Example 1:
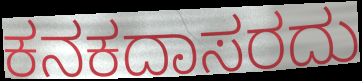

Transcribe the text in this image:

ಕನಕದಾಸರದು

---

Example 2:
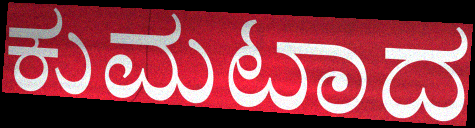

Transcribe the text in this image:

ಕುಮಟಾದ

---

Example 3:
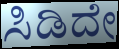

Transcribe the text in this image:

ಸಿಡಿದೇ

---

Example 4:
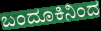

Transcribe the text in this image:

ಬಂದೂಕಿನಿಂದ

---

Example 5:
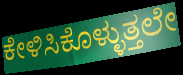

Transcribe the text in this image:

ಕೇಳಿಸಿಕೊಳ್ಳುತ್ತಲೇ